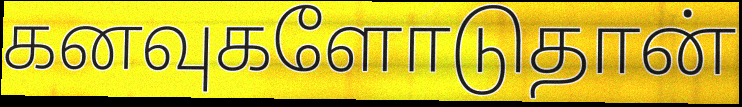
கனவுகளோடுதான்